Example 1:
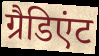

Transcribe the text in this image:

ग्रैडिएंट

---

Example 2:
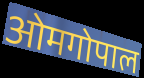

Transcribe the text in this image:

ओमगोपाल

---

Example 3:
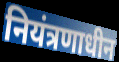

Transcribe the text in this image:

नियंत्रणाधीन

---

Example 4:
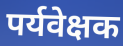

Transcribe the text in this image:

पर्यवेक्षक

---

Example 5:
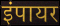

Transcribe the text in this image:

इंपायर